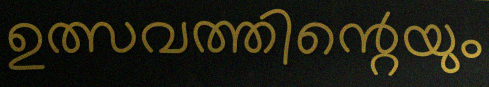
ഉത്സവത്തിന്റെയും